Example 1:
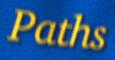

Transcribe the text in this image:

Paths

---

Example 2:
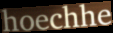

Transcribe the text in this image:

hoechhe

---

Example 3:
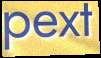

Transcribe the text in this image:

pext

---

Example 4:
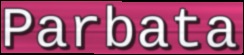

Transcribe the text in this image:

Parbata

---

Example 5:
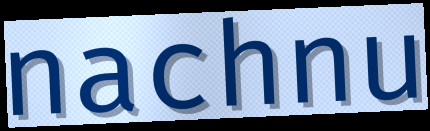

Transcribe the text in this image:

nachnu